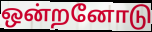
ஒன்றனோடு